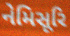
નેમિસૂરિ